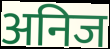
अनिज